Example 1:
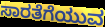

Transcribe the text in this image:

ಸಾರತೆಗೆಯುವ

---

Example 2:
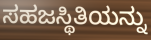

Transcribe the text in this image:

ಸಹಜಸ್ಥಿತಿಯನ್ನು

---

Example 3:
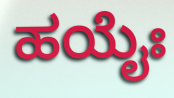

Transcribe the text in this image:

ಹಯೈಃ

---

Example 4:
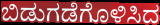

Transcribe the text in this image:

ಬಿಡುಗಡೆಗೊಳಿಸಿದ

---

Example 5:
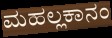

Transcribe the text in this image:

ಮಹಲ್ಲಕಾನಂ